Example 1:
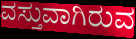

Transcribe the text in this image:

ವಸ್ತುವಾಗಿರುವ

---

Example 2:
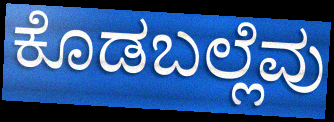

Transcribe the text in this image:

ಕೊಡಬಲ್ಲೆವು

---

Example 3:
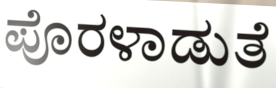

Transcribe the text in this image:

ಪೊರಳಾಡುತೆ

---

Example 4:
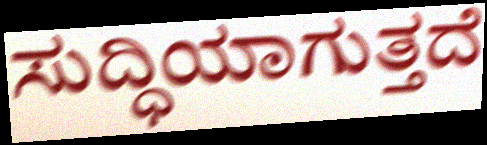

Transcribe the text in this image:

ಸುದ್ಧಿಯಾಗುತ್ತದೆ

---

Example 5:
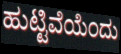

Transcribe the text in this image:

ಹುಟ್ಟಿವೆಯೆಂದು